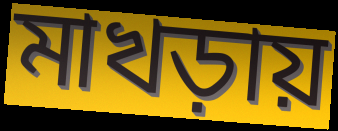
মাখড়ায়